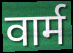
वार्म